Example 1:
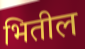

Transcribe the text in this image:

भितील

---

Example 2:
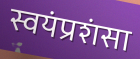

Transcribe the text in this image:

स्वयंप्रशंसा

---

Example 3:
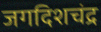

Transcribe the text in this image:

जगदिशचंद्र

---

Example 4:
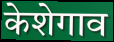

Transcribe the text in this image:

केशेगाव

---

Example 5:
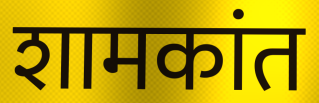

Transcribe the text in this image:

शामकांत